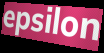
epsilon